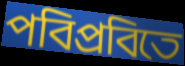
পবিপ্রবিতে